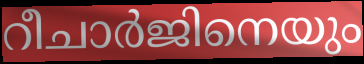
റീചാർജിനെയും